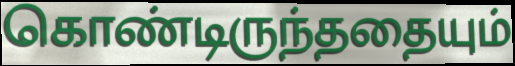
கொண்டிருந்ததையும்